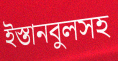
ইস্তানবুলসহ